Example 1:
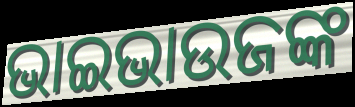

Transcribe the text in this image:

ଭାଇଭାଉଜଙ୍କ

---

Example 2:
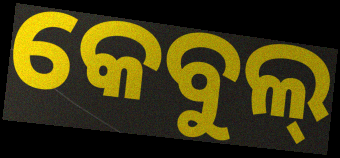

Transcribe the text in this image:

କେବୁଲ୍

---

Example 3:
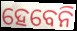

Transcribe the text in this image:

ହେବେନି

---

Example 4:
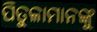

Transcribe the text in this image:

ପିତୁଳାମାନଙ୍କୁ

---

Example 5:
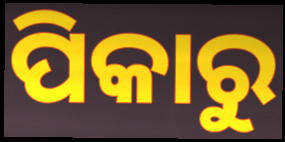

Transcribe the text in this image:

ପିକାରୁ